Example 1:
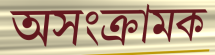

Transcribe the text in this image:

অসংক্রামক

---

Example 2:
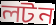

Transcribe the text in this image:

লটন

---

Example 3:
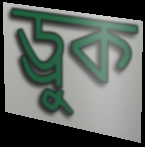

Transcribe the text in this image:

ড্রুক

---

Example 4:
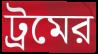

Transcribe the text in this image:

ট্রমের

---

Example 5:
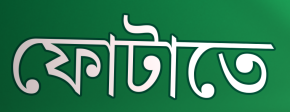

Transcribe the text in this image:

ফোটাতে